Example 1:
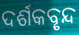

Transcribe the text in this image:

ଦର୍ଶକବୃନ୍ଦ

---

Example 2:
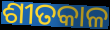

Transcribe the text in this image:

ଶୀତକାଳ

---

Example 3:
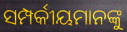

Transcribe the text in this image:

ସମ୍ପର୍କୀୟମାନଙ୍କୁ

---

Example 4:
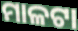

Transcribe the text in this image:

ମାଳଟା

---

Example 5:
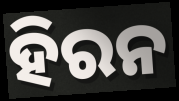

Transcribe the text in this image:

ହିରନ